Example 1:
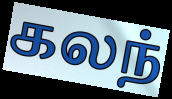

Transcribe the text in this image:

கலந்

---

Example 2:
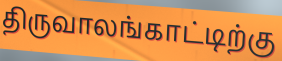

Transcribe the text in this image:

திருவாலங்காட்டிற்கு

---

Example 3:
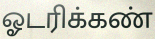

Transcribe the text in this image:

ஓடரிக்கண்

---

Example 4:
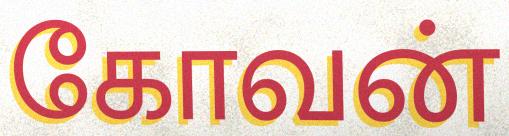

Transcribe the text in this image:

கோவன்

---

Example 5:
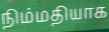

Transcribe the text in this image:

நிம்மதியாக